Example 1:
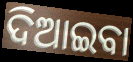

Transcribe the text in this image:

ଦିଆଇବା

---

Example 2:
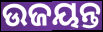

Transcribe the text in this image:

ଉଜୟନ୍ତ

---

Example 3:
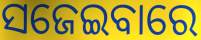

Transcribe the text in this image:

ସଜେଇବାରେ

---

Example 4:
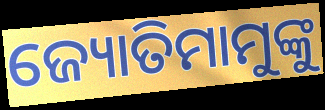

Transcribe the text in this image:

ଜ୍ୟୋତିମାମୁଙ୍କୁ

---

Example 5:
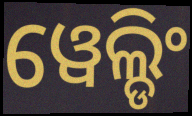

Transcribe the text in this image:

ୱେଲ୍ଡିଂ